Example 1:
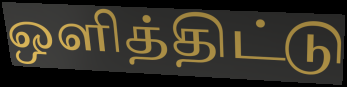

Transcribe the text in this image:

ஒளித்திட்டு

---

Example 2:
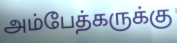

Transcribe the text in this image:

அம்பேத்கருக்கு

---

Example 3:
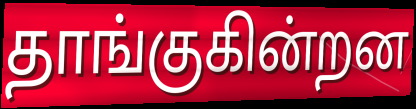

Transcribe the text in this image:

தாங்குகின்றன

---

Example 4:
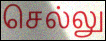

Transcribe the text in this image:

செல்லு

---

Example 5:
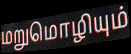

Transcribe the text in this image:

மறுமொழியும்